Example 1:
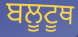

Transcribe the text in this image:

ਬਲੂਟੂਥ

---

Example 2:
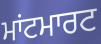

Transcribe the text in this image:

ਮਾਂਟਮਾਰਟ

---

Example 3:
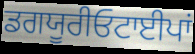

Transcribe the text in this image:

ਡਗਯੂਰੀਓਟਾਈਪਾਂ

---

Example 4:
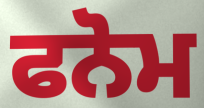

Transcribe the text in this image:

ਫਨੋਮ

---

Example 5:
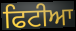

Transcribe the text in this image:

ਫਿਟੀਆ